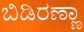
ಬಿಡಿರಣ್ಣಾ